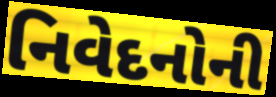
નિવેદનોની